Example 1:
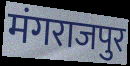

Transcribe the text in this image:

मंगराजपुर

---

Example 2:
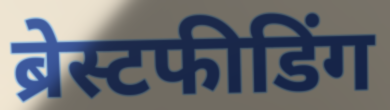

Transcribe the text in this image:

ब्रेस्टफीडिंग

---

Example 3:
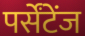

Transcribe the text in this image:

पर्सेंटेंज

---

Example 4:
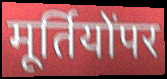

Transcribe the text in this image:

मूर्तियोंपर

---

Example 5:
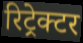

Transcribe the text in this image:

रिट्रेक्टर